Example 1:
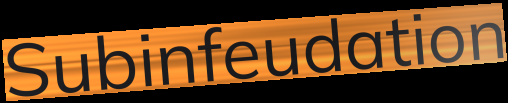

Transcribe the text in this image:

Subinfeudation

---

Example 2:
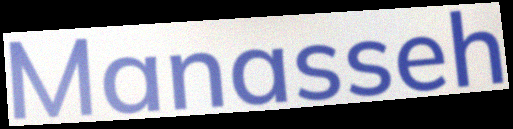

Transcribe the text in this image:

Manasseh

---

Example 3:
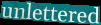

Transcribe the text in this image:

unlettered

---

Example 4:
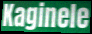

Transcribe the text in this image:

Kaginele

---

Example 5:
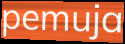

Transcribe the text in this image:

pemuja